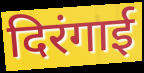
दिरंगाई